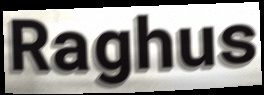
Raghus